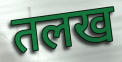
तलख